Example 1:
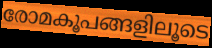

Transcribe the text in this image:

രോമകൂപങ്ങളിലൂടെ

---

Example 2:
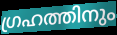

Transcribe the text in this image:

ഗ്രഹത്തിനും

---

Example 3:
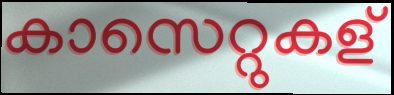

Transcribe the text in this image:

കാസെറ്റുകള്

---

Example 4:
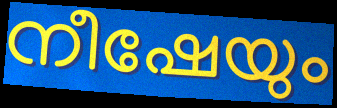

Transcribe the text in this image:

നീഷേയും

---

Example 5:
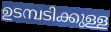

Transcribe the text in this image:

ഉടമ്പടിക്കുള്ള